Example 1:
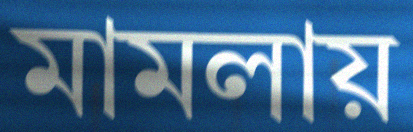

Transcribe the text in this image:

মামলায়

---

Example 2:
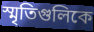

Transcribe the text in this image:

স্মৃতিগুলিকে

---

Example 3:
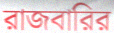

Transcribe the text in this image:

রাজবারির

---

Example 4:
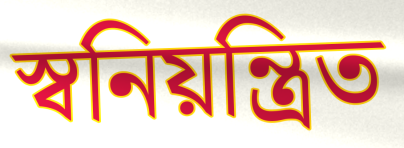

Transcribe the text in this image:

স্বনিয়ন্ত্রিত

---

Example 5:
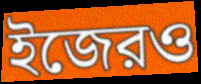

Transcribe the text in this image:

ইজেরও